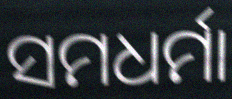
ସମଧର୍ମା